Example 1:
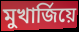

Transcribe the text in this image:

মুখাৰ্জিয়ে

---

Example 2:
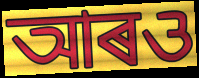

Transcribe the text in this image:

আৰও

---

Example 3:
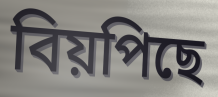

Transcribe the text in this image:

বিয়পিছে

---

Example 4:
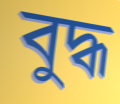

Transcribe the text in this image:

বুদ্ধ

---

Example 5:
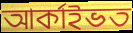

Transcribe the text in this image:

আৰ্কাইভত